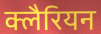
क्लैरियन